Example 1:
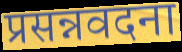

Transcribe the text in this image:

प्रसन्नवदना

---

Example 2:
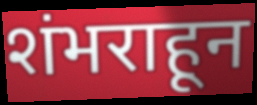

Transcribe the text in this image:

शंभराहून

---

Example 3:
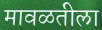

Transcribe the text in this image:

मावळतीला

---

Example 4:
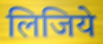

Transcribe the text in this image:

लिजिये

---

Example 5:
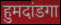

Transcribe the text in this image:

हुमदांडगा